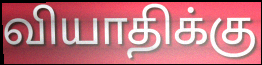
வியாதிக்கு